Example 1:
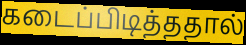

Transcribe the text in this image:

கடைப்பிடித்ததால்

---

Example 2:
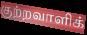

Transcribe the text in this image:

குற்றவாளிக்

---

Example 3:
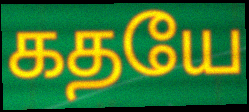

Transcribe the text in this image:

கதயே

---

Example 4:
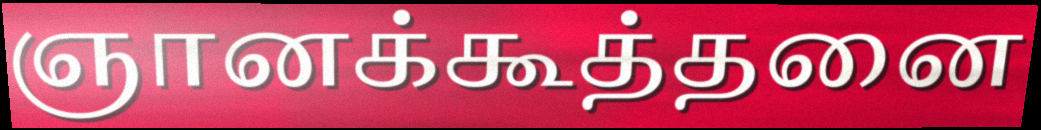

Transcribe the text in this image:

ஞானக்கூத்தனை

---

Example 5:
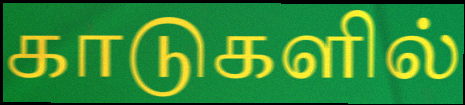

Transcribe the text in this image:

காடுகளில்